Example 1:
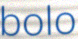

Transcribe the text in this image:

bolo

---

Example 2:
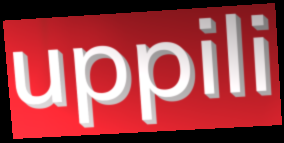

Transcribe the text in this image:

uppili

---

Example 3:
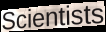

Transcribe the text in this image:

Scientists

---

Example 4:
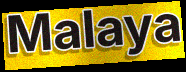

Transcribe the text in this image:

Malaya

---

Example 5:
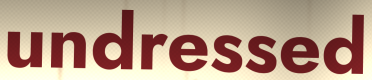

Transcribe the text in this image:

undressed